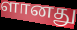
ளானது